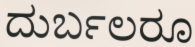
ದುರ್ಬಲರೂ